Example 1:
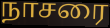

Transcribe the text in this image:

நாசரை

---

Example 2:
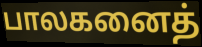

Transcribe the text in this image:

பாலகனைத்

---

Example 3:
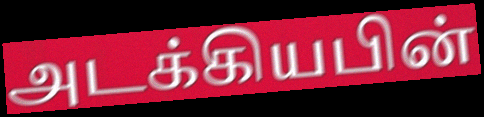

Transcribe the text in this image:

அடக்கியபின்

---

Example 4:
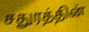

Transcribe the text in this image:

சதுரத்தின்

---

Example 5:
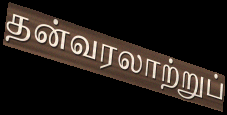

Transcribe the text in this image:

தன்வரலாற்றுப்